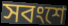
সবংশে